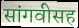
सांगवीसह